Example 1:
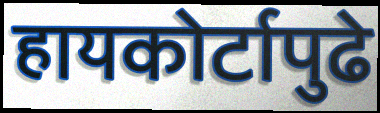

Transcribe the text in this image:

हायकोर्टापुढे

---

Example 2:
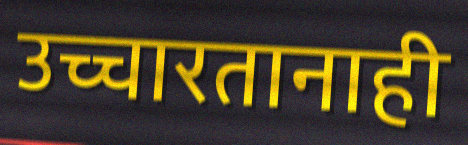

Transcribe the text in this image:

उच्चारतानाही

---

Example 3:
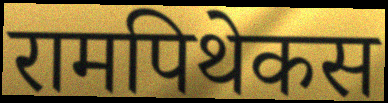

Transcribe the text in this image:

रामपिथेकस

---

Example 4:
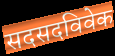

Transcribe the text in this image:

सदसदविवेक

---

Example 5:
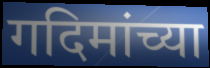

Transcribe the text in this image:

गदिमांच्या